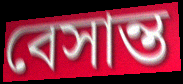
বেসান্ত